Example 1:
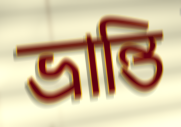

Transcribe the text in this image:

ভ্রান্তি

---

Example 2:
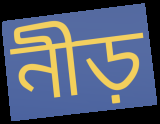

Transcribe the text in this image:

নীড়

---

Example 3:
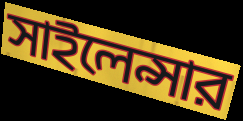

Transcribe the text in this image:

সাইলেন্সার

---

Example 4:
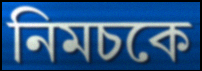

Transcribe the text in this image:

নিমচকে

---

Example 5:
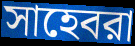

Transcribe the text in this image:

সাহেবরা